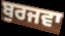
ਬੁਰਜਵਾ